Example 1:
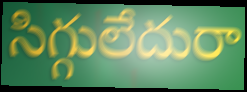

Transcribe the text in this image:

సిగ్గులేదురా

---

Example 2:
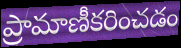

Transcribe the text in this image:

ప్రామాణీకరించడం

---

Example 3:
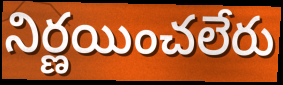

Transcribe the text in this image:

నిర్ణయించలేరు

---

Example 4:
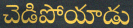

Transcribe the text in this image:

చెడిపోయాడు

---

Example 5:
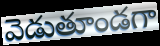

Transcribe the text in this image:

వెడుతూండగా